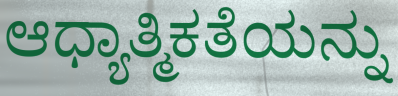
ಆಧ್ಯಾತ್ಮಿಕತೆಯನ್ನು